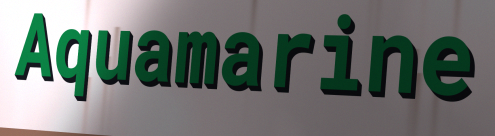
Aquamarine